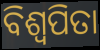
ବିଶ୍ଵପିତା